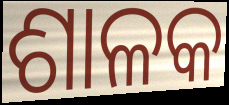
ଶାଳକ